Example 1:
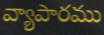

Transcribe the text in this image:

వ్యాపారము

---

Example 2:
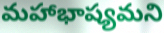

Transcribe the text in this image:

మహాభాష్యమని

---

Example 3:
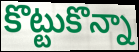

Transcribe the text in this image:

కొట్టుకొన్నా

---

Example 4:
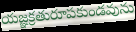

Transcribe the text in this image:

యజ్ఞక్రతురూపకుండవును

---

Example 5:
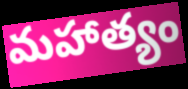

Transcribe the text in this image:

మహాత్యం